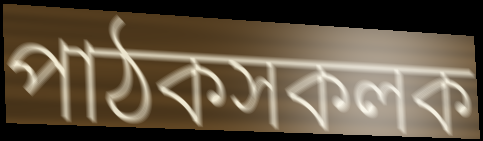
পাঠকসকলক